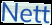
Nett